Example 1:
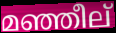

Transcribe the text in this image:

മഞ്ഞീല്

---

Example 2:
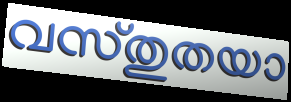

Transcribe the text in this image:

വസ്തുതയാ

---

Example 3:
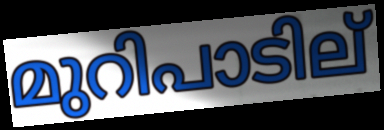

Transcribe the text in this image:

മുറിപാടില്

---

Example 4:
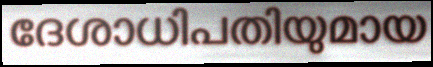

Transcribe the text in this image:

ദേശാധിപതിയുമായ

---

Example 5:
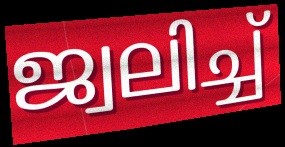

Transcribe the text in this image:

ജ്വലിച്ച്